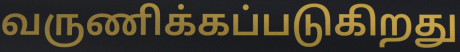
வருணிக்கப்படுகிறது